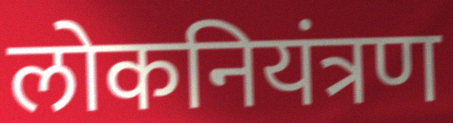
लोकनियंत्रण